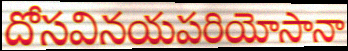
దోసవినయపరియోసానా